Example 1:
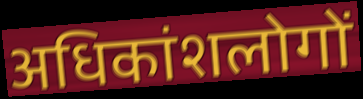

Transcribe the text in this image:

अधिकांशलोगों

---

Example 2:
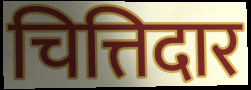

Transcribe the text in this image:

चित्तिदार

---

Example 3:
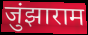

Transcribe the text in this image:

जुंझाराम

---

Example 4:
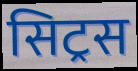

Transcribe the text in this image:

सिट्रस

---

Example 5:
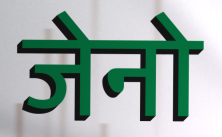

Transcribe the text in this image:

जेनो